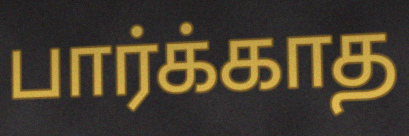
பார்க்காத